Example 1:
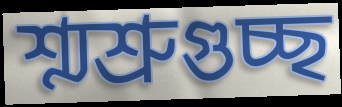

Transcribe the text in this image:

শ্মশ্রুগুচ্ছ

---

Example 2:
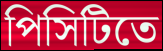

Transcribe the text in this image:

পিসিটিতে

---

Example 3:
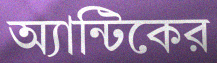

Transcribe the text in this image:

অ্যান্টিকের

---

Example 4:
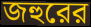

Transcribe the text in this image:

জহুরের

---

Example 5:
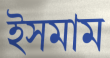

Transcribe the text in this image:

ইসমাম